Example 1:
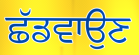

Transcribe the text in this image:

ਛੱਡਵਾਉਣ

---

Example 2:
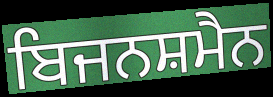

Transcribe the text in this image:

ਬਿਜਨਸ਼ਮੈਨ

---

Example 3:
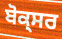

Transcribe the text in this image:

ਬੋਕ੍ਸਰ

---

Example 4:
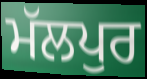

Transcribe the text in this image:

ਮੱਲਪੁਰ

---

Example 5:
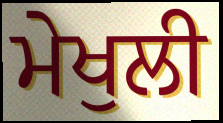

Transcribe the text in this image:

ਮੇਖੁਲੀ